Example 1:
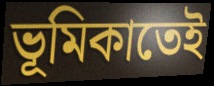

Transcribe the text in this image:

ভূমিকাতেই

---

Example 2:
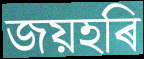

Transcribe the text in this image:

জয়হৰি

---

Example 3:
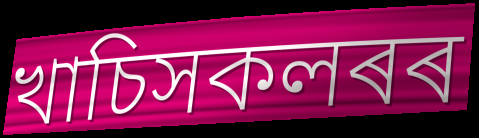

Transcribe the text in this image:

খাচিসকলৰৰ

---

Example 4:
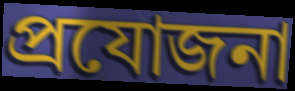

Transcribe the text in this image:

প্ৰযোজনা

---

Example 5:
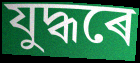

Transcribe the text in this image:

যুদ্ধৰে